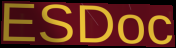
ESDoc